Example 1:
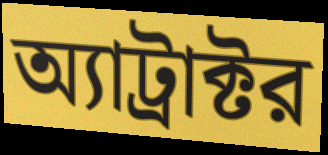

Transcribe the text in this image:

অ্যাট্রাক্টর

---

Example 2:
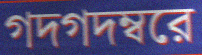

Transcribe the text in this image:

গদগদম্বরে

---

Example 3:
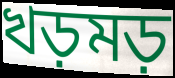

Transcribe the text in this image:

খড়মড়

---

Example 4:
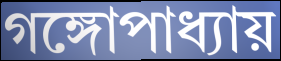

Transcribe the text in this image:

গঙ্গোপাধ্যায়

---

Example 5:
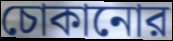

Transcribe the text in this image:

চোকানোর